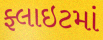
ફ્લાઇટમાં